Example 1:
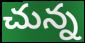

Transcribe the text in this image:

చున్న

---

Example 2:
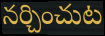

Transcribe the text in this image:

నర్చించుట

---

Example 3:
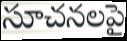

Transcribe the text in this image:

సూచనలపై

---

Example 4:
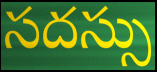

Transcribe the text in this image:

సదస్సు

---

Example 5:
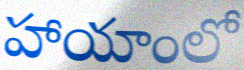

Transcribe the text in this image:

హాయాంలో